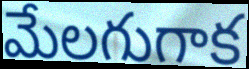
మేలగుగాక